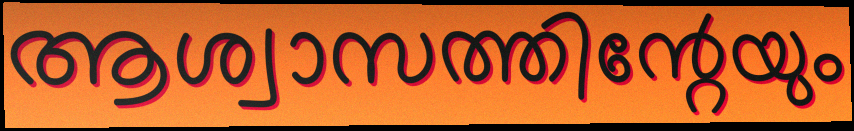
ആശ്വാസത്തിന്റേയും